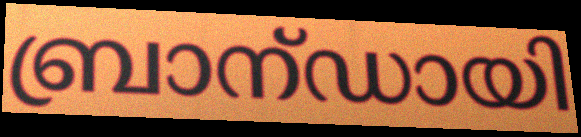
ബ്രാന്ഡായി